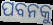
ପବନକୁ